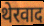
थेरवाद